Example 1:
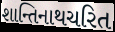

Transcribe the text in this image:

શાન્તિનાથચરિત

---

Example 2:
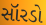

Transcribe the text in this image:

સૉરડો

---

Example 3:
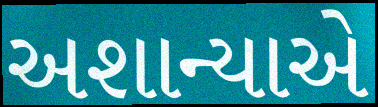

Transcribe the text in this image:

અશાન્યાએ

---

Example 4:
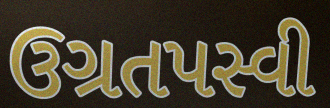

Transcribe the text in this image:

ઉગ્રતપસ્વી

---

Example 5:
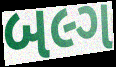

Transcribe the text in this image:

બલ્ગ